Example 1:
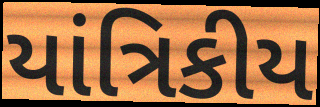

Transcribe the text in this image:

યાંત્રિકીય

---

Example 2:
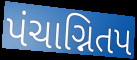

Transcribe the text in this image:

પંચાગ્નિતપ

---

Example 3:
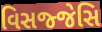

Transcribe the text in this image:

વિસજ્જેસિ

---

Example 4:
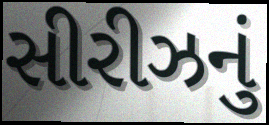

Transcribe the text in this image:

સીરીઝનું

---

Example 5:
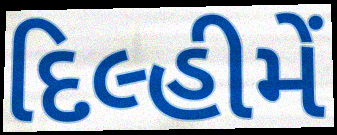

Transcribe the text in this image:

દિલ્હીમેં